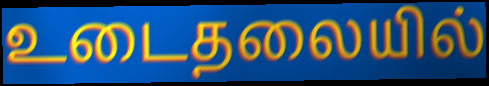
உடைதலையில்